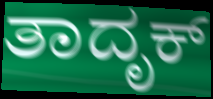
ತಾದೃಕ್